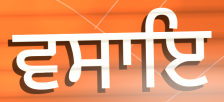
ਵਸਾਇ